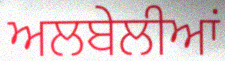
ਅਲਬੇਲੀਆਂ